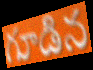
గూడిన